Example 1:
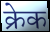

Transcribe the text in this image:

क्रेक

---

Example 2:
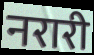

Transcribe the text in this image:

नरारी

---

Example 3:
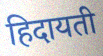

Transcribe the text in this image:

हिदायती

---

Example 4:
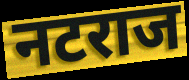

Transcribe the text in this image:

नटराज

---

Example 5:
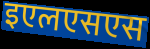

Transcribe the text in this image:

इएलएसएस